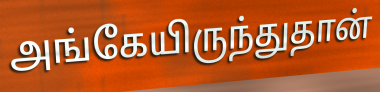
அங்கேயிருந்துதான்